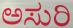
ಅಸುರಿ